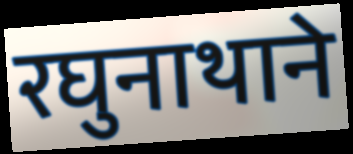
रघुनाथाने